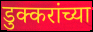
डुक्करांच्या